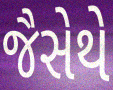
જૈસેથે